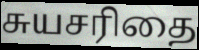
சுயசரிதை